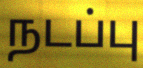
நடப்பு